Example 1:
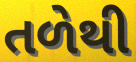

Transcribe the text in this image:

તળેથી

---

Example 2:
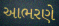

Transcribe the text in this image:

આભરણે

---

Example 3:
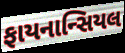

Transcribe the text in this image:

ફાયનાન્સિયલ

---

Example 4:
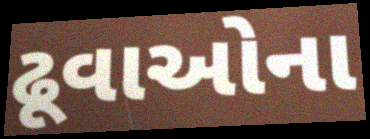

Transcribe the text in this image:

ઢૂવાઓના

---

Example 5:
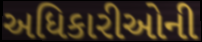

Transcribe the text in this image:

અધિકારીઓની